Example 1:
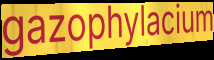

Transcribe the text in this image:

gazophylacium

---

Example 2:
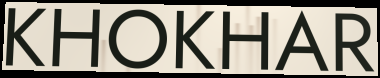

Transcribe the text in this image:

KHOKHAR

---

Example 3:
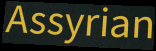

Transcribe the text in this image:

Assyrian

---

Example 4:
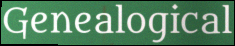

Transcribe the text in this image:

Genealogical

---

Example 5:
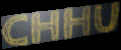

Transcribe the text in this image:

CHHU